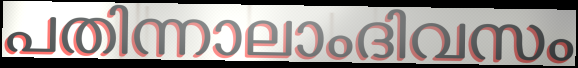
പതിന്നാലാംദിവസം